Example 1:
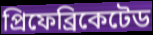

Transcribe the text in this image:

প্রিফেব্রিকেটেড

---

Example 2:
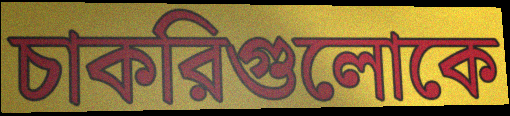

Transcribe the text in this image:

চাকরিগুলোকে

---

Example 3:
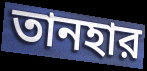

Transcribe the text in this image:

তানহার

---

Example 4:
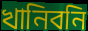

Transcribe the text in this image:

খানিবনি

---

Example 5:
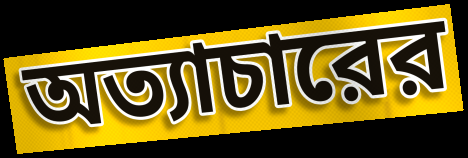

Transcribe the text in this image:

অত্যাচারের